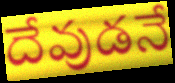
దేవుడనే